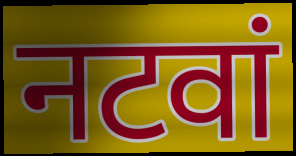
नटवां